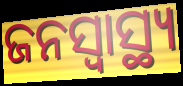
ଜନସ୍ବାସ୍ଥ୍ୟ